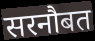
सरनौबत